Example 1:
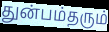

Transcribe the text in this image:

துன்பம்தரும்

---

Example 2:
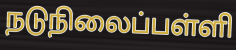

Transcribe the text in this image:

நடுநிலைப்பள்ளி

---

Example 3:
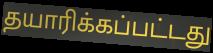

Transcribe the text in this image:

தயாரிக்கப்பட்டது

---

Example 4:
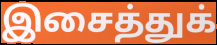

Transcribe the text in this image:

இசைத்துக்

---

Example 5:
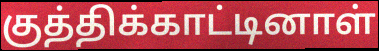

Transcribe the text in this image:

குத்திக்காட்டினாள்